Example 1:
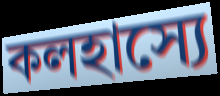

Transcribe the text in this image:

কলহাস্যে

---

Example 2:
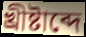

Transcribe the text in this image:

খ্রীষ্টাব্দে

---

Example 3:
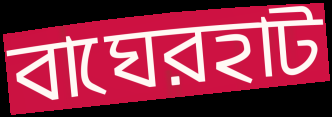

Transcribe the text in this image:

বাঘেরহাট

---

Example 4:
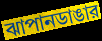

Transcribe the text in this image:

ঝাপানডাঙার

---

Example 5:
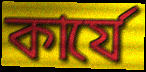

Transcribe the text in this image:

কার্যে